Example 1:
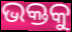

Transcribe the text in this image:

ଭକ୍ତକୁ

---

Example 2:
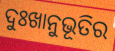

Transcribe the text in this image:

ଦୁଃଖାନୁଭୂତିର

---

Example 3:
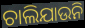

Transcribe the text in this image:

ଚାଲିଯାଉନି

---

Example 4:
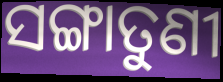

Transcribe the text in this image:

ସଙ୍ଗାତୁଣୀ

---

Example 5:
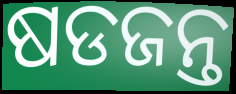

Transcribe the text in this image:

ଷଡଜନ୍ତ